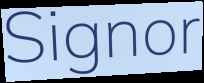
Signor